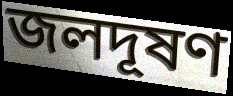
জলদূষণ